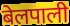
बेलपाली